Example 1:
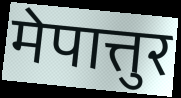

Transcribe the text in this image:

मेपात्तुर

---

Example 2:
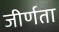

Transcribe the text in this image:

जीर्णता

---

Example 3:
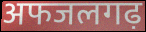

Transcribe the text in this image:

अफजलगढ़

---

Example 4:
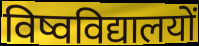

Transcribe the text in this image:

विष्वविद्यालयों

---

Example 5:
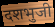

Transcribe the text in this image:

दशभुजी